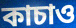
কাচাও